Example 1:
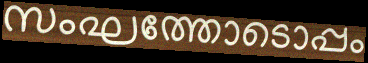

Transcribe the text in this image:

സംഘത്തോടൊപ്പം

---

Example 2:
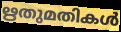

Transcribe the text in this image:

ഋതുമതികൾ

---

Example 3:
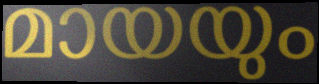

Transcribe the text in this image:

മായയും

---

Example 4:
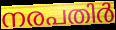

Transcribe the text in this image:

നരപതിർ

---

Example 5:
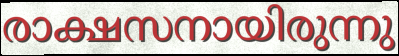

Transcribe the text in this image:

രാക്ഷസനായിരുന്നു